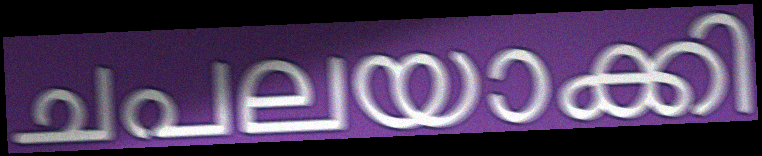
ചപലയാക്കി